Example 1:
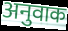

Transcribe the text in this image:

अनुवाक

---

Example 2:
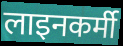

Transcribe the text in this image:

लाइनकर्मी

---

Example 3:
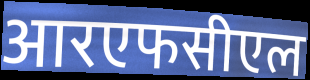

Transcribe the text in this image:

आरएफसीएल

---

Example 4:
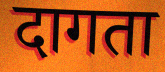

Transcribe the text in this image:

दागता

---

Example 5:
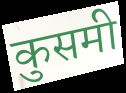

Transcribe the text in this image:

कुसमी